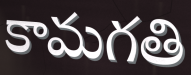
కామగతి